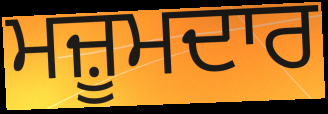
ਮਜ਼ੂਮਦਾਰ